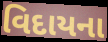
વિદાયના